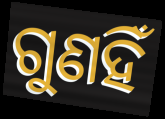
ଗୁଣହିଁ